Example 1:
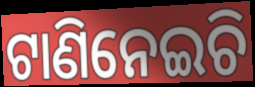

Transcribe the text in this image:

ଟାଣିନେଇଚି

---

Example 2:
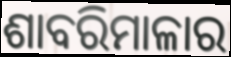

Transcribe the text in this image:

ଶାବରିମାଳାର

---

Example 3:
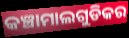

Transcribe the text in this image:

କଞ୍ଚାମାଲଗୁଡିକର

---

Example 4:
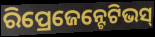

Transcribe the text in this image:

ରିପ୍ରେଜେନ୍ଟେଟିଭସ୍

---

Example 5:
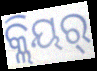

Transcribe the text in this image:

କ୍ଲିୟର୍